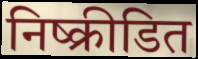
निष्क्रीडित